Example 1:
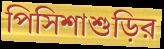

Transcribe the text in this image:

পিসিশাশুড়ির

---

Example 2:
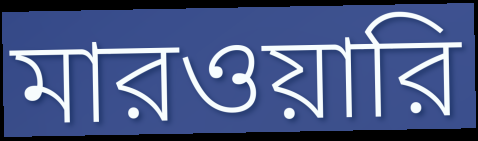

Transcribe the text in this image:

মারওয়ারি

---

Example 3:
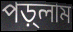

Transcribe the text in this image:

পড়্‌লাম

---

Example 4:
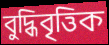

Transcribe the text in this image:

বুদ্ধিবৃত্তিক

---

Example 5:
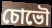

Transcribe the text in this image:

চোভৌ